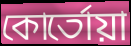
কোর্তোয়া